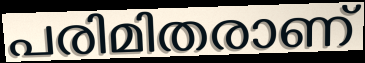
പരിമിതരാണ്